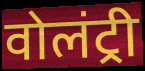
वोलंट्री